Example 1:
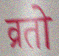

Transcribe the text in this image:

व्रतो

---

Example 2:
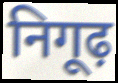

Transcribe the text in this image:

निगूढ़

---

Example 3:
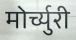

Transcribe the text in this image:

मोर्च्युरी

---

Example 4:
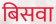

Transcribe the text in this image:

बिसवा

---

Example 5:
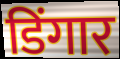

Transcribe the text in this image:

डिंगार